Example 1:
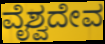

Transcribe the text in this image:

ವೈಶ್ವದೇವ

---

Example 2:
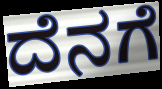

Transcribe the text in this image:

ದೆನಗೆ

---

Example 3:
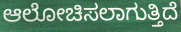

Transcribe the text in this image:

ಆಲೋಚಿಸಲಾಗುತ್ತಿದೆ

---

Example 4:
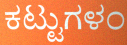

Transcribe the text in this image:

ಕಟ್ಟುಗಳಂ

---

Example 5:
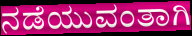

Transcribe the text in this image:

ನಡೆಯುವಂತಾಗಿ